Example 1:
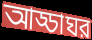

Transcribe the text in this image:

আড্ডাঘর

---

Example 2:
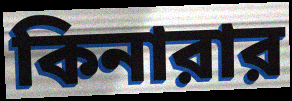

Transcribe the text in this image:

কিনারার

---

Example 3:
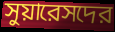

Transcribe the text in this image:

সুয়ারেসদের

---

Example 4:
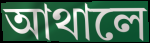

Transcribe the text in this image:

আথালে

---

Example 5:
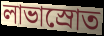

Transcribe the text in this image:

লাভাস্রোত